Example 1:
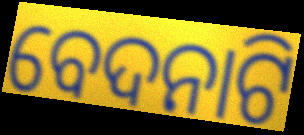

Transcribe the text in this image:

ବେଦନାଟି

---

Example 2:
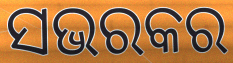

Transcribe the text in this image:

ସଭରକର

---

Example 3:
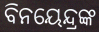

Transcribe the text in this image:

ବିନୟେନ୍ଦ୍ରଙ୍କ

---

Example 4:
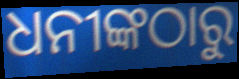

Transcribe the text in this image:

ଧନୀଙ୍କଠାରୁ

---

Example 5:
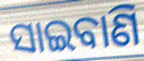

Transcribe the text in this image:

ସାଇବାଣି